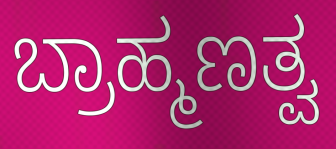
ಬ್ರಾಹ್ಮಣತ್ವ